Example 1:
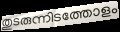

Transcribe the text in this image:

തുടരുന്നിടത്തോളം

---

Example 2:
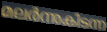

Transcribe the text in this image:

മലർന്നുകിടന്ന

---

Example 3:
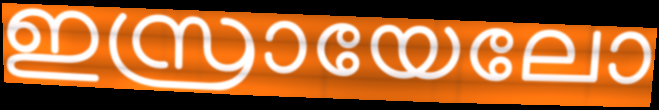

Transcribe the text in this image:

ഇസ്രായേലോ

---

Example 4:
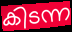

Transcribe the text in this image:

കിടന്ന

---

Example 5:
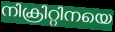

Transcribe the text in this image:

നിക്രിറ്റിനയെ